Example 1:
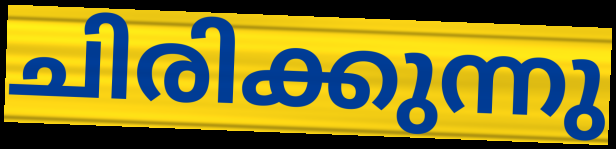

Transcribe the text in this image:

ചിരിക്കുന്നു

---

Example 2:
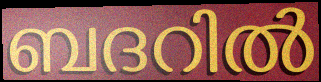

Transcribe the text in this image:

ബദറിൽ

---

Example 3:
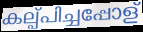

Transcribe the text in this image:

കല്പ്പിച്ചപ്പോള്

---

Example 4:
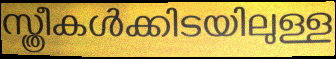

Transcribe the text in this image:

സ്ത്രീകൾക്കിടയിലുള്ള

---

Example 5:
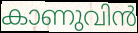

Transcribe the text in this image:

കാണുവിൻ